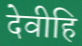
देवीहि